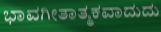
ಭಾವಗೀತಾತ್ಮಕವಾದುದು